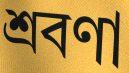
শ্রবণা